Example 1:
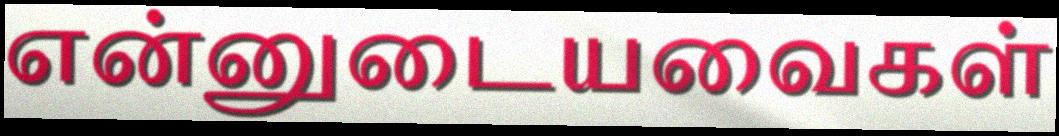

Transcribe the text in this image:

என்னுடையவைகள்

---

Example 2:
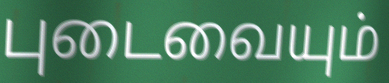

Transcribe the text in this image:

புடைவையும்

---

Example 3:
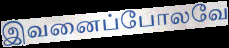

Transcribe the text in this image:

இவனைப்போலவே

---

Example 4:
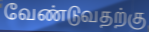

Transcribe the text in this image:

வேண்டுவதற்கு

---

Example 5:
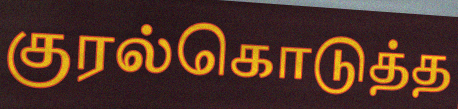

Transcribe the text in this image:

குரல்கொடுத்த